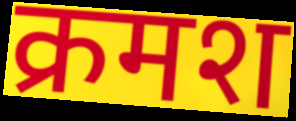
क्रमश